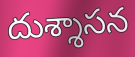
దుశ్శాసన